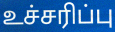
உச்சரிப்பு